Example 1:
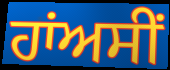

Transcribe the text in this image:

ਹਾਂਅਸੀਂ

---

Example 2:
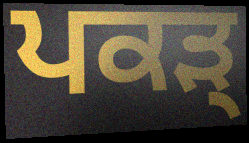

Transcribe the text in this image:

ਪਕੜ੍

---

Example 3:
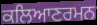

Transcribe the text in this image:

ਕਲਿਆਣਰਮਨ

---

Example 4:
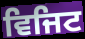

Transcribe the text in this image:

ਵਿਜਿਟ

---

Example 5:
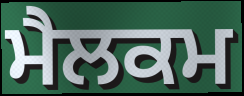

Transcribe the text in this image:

ਮੈਲਕਮ